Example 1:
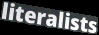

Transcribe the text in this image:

literalists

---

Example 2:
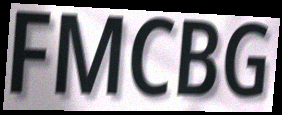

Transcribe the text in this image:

FMCBG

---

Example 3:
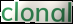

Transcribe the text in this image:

clonal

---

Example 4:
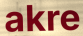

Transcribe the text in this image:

akre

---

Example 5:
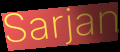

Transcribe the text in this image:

Sarjan